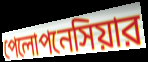
পেলোপনেসিয়ার